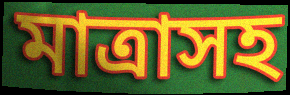
মাত্রাসহ